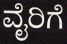
ವೈರಿಗೆ